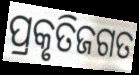
ପ୍ରକୃତିଜଗତ